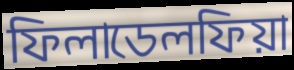
ফিলাডেলফিয়া